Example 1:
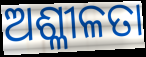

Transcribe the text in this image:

ଅଶ୍ଳୀଳତା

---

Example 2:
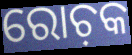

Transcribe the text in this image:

ରୋଚ଼କ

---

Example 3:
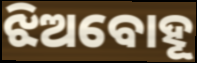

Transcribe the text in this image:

ଝିଅବୋହୂ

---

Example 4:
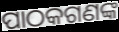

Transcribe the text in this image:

ପାଠକଗଣଙ୍କ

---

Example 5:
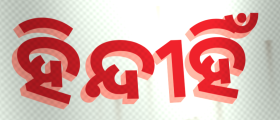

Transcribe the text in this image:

ହିନ୍ଦୀହିଁ